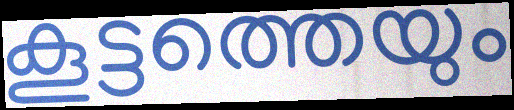
കൂട്ടത്തെയും